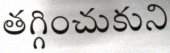
తగ్గించుకుని